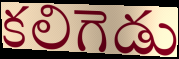
కలిగెడు